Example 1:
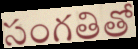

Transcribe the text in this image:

సంగతితో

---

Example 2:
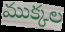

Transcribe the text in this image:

ముక్కల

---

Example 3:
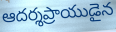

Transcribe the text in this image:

ఆదర్శప్రాయుడైన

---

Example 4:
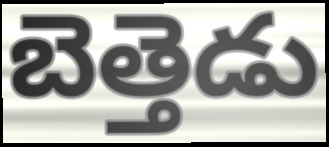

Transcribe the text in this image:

బెత్తెడు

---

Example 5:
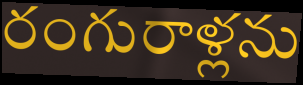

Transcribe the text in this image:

రంగురాళ్లను